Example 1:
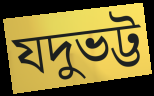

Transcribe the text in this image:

যদুভট্ট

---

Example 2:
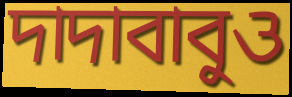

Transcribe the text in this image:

দাদাবাবুও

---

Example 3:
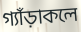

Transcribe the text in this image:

গ্যাঁড়াকলে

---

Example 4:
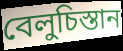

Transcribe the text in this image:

বেলুচিস্তান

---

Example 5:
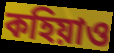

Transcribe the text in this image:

কহিয়াও